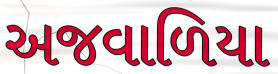
અજવાળિયા